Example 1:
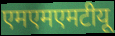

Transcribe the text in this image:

एमएमएमटीयू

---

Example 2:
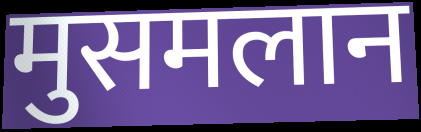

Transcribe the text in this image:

मुसमलान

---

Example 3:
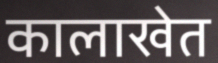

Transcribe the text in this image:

कालाखेत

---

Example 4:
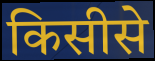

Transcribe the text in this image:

किसीसे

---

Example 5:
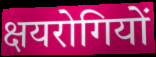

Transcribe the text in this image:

क्षयरोगियों